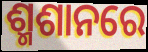
ଶ୍ମଶାନରେ